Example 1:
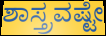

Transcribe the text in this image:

ಶಾಸ್ತ್ರವಷ್ಟೇ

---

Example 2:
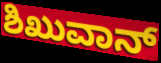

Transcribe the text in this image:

ಶಿಖುವಾನ್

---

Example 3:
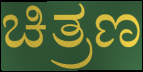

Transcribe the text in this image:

ಚಿತ್ರಣ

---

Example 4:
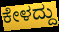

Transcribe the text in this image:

ಕೇಳದ್ದು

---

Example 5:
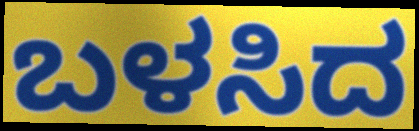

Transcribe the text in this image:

ಬಳಸಿದ